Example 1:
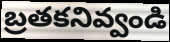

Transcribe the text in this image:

బ్రతకనివ్వండి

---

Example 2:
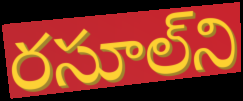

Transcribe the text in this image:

రసూల్‌ని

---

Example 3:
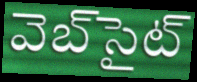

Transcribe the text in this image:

వెబ్‌సైట్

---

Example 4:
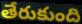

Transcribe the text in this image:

తేరుకుంది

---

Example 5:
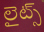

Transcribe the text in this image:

లైట్స్